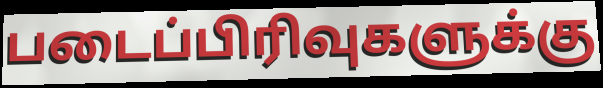
படைப்பிரிவுகளுக்கு